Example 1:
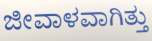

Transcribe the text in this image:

ಜೀವಾಳವಾಗಿತ್ತು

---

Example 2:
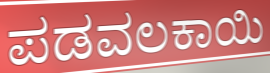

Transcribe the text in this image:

ಪಡವಲಕಾಯಿ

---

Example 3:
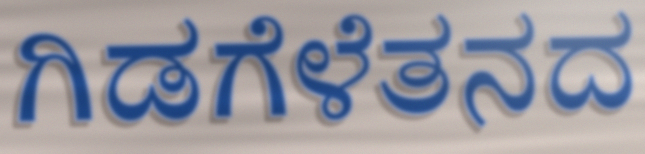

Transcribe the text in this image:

ಗಿಡಗೆಳೆತನದ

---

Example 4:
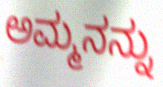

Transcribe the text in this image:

ಅಮ್ಮನನ್ನು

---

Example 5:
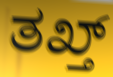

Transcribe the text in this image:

ತಖ್ತ್